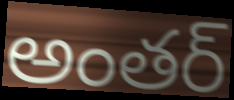
అంతర్